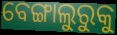
ବେଙ୍ଗାଲୁରୁକୁ